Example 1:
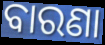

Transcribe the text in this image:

ବାରଣା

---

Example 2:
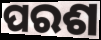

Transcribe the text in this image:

ପରଶ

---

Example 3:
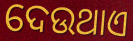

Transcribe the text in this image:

ଦେଉଥାଏ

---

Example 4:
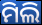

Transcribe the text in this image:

ମିଲି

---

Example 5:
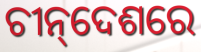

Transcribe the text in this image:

ଚୀନ୍‌ଦେଶରେ